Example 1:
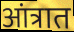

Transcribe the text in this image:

आंत्रात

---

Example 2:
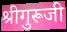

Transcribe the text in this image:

श्रीगुरूजी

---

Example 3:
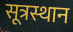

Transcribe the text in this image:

सूत्रस्थान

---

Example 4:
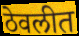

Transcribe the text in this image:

ठेवलीत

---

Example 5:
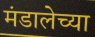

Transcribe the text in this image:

मंडालेच्या